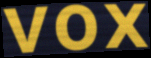
vox